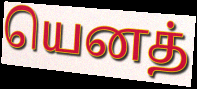
யெனத்